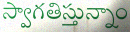
స్వాగతిస్తున్నాం